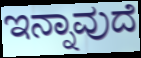
ಇನ್ನಾವುದೆ